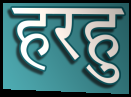
हरहु